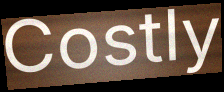
Costly